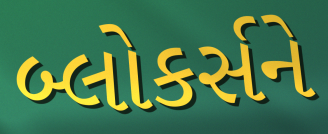
બ્લોકર્સને